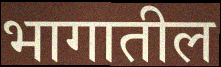
भागातील